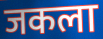
जकला